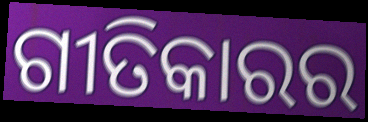
ଗୀତିକାରର